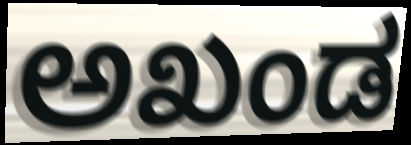
ಅಖಂಡ